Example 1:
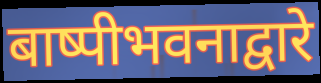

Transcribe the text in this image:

बाष्पीभवनाद्वारे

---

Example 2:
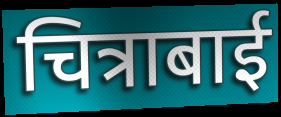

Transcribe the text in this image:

चित्राबाई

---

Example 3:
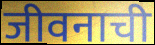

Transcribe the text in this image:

जीवनाची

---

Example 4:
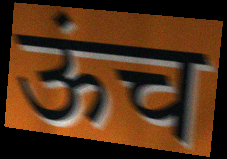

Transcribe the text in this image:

ऊंच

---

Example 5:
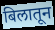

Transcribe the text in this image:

बिलातून